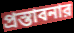
প্রস্তাবনার